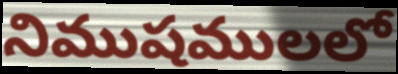
నిముషములలో